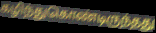
கழிந்துகொண்டிருந்தது